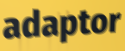
adaptor